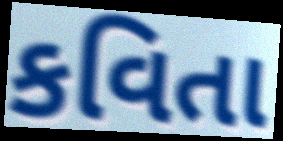
કવિતા